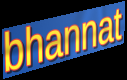
bhannat